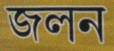
জলন